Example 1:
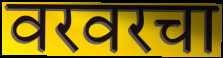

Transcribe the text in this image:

वरवरचा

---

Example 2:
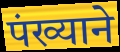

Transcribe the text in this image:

पंख्याने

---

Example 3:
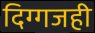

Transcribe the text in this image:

दिग्गजही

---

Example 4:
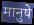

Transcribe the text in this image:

मानुषे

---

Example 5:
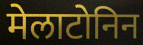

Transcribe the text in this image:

मेलाटोनिन